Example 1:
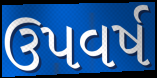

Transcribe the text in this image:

ઉપવર્ષ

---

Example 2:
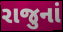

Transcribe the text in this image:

રાજુનાં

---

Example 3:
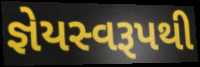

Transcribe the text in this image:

જ્ઞેયસ્વરૂપથી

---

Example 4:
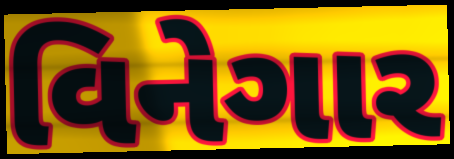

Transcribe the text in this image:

વિનેગાર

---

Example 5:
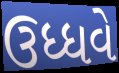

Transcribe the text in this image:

ઉધ્ધવે